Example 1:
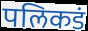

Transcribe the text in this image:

पलिकडं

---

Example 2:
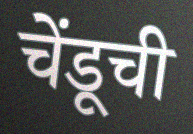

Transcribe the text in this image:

चेंडूची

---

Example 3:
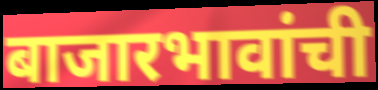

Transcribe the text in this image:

बाजारभावांची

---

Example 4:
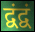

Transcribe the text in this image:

द्वंद्वं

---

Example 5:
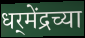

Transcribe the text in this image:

धर्मेंद्रच्या